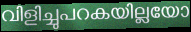
വിളിച്ചുപറകയില്ലയോ